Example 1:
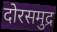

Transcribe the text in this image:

दोरसमुद्र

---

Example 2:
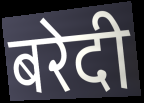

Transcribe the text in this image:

बरेदी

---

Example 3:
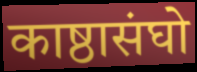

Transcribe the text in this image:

काष्ठासंघो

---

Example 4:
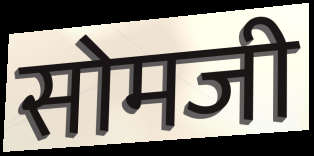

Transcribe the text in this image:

सोमजी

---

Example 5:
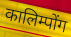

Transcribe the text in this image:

कालिम्पोंग